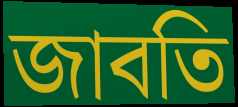
জাবতি